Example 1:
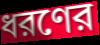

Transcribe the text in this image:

ধরণের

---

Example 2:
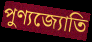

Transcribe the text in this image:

পুণ্যজ্যোতি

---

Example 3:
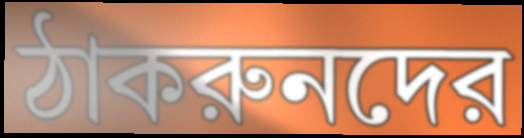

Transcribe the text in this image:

ঠাকরুনদের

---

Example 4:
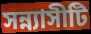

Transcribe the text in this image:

সন্ন্যাসীটি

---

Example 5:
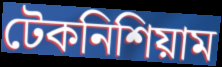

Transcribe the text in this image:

টেকনিশিয়াম